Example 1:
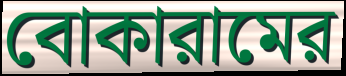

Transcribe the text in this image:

বোকারামের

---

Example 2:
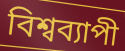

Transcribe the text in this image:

বিশ্বব্যাপী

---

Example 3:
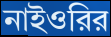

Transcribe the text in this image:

নাইওরির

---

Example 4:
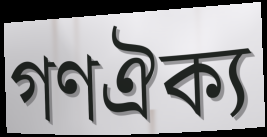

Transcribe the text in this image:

গণঐক্য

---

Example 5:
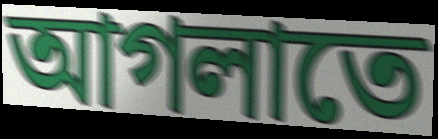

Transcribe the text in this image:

আগলাতে